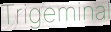
Trigeminal